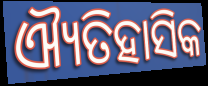
ଐ୍ୟତିହାସିକ